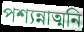
পশ্যন্নাত্মনি